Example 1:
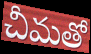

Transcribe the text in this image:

చీమతో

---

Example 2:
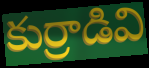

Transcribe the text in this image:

కుర్రాడివి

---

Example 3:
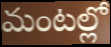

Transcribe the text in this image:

మంటల్లో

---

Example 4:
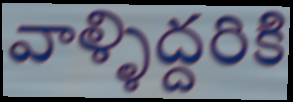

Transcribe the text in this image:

వాళ్ళిద్దరికి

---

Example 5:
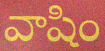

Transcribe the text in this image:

వాషిం